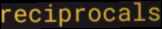
reciprocals